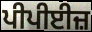
ਪੀਪੀਈਜ਼